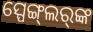
ସ୍ପେଙ୍ଗ୍‌ଲର୍‌ଙ୍କ